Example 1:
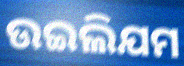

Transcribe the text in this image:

ଉଇଲିଯମ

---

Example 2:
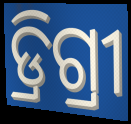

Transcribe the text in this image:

ଡ୍ରିଗ୍ରୀ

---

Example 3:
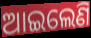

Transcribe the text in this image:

ଆଇଲେଣି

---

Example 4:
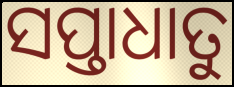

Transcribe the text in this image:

ସପ୍ତାଧାତୁ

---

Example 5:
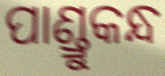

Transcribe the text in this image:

ପାଣ୍ଡ୍ରୁକନ୍ଧ